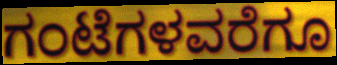
ಗಂಟೆಗಳವರೆಗೂ